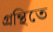
গ্রন্থিতে